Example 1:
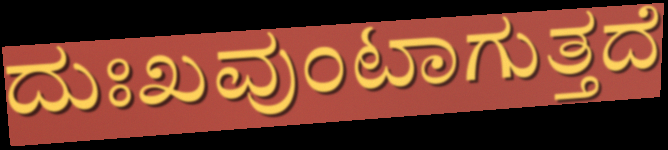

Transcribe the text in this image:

ದುಃಖವುಂಟಾಗುತ್ತದೆ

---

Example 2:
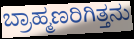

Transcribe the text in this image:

ಬ್ರಾಹ್ಮಣರಿಗಿತ್ತನು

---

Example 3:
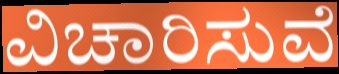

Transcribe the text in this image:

ವಿಚಾರಿಸುವೆ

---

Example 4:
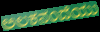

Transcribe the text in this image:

ಅಲಕನಂದೆಯು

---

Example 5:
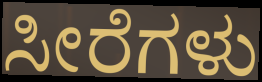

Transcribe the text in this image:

ಸೀರೆಗಳು